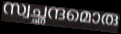
സ്വച്ഛന്ദമൊരു